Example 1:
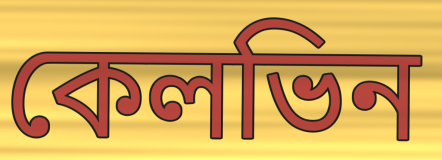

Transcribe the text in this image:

কেলভিন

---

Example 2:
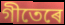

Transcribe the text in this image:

গীতেৰে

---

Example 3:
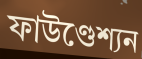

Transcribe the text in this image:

ফাউণ্ডেশ্যন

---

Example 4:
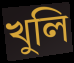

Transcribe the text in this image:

খুলি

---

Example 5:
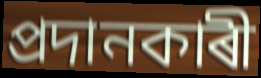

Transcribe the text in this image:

প্ৰদানকাৰী